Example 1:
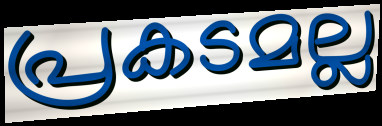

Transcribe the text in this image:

പ്രകടമല്ല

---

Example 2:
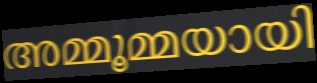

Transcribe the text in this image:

അമ്മൂമ്മയായി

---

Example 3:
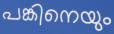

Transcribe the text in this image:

പങ്കിനെയും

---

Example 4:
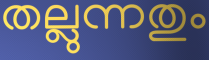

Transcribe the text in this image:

തല്ലുന്നതും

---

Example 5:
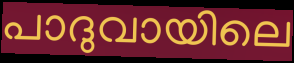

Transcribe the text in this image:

പാദുവായിലെ